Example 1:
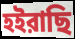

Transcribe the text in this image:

হইরাছি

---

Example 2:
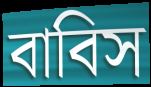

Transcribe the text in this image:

বাবিস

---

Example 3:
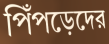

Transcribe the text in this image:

পিঁপড়েদের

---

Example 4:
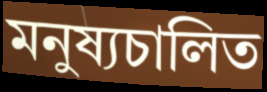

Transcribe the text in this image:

মনুষ্যচালিত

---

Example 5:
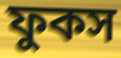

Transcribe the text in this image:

ফুকস